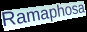
Ramaphosa